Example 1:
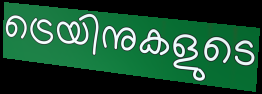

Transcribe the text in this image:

ട്രെയിനുകളുടെ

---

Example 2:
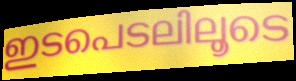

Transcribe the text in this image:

ഇടപെടലിലൂടെ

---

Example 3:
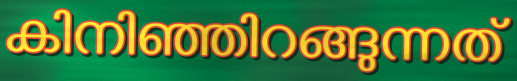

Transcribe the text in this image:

കിനിഞ്ഞിറങ്ങുന്നത്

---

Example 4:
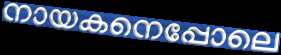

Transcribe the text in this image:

നായകനെപ്പോലെ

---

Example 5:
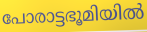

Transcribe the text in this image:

പോരാട്ടഭൂമിയിൽ